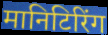
मानिटिरिंग